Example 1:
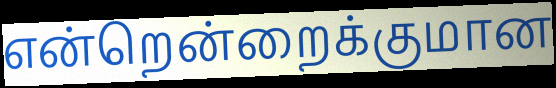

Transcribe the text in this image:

என்றென்றைக்குமான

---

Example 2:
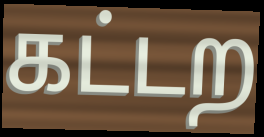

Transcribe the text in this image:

கட்டற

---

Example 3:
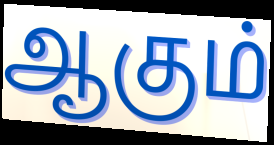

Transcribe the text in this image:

ஆகும்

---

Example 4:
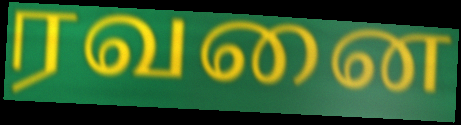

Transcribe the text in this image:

ரவனை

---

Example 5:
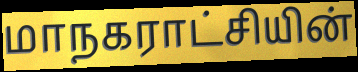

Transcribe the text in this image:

மாநகராட்சியின்